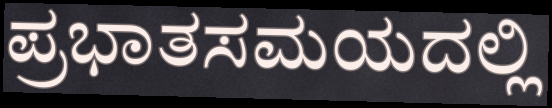
ಪ್ರಭಾತಸಮಯದಲ್ಲಿ